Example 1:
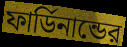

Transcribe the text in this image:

ফার্ডিনান্ডের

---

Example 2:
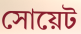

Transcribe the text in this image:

সোয়েট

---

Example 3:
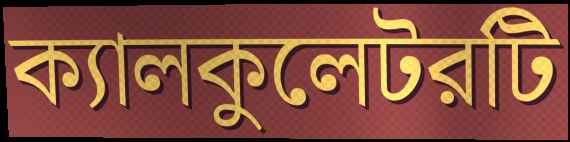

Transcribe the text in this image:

ক্যালকুলেটরটি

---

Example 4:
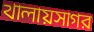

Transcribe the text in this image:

থালায়সাগর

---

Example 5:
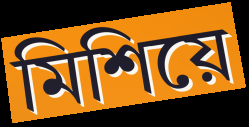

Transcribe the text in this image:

মিশিয়ে